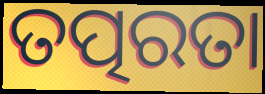
ତତ୍ପରତା